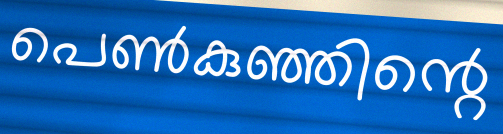
പെൺകുഞ്ഞിന്റെ